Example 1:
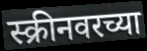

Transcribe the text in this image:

स्क्रीनवरच्या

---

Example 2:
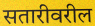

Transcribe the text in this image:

सतारीवरील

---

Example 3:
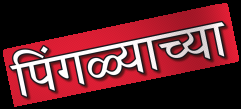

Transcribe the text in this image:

पिंगळ्याच्या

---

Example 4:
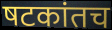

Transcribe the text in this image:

षटकांतच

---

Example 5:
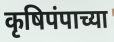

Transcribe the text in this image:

कृषिपंपाच्या